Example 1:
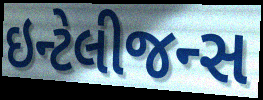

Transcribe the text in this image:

ઇન્ટેલીજન્સ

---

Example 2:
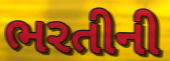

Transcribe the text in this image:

ભરતીની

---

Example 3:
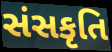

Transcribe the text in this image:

સંસકૃતિ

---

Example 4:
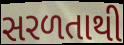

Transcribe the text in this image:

સરળતાથી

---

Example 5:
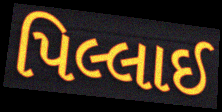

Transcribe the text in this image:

પિલ્લાઈ